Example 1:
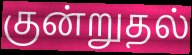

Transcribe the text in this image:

குன்றுதல்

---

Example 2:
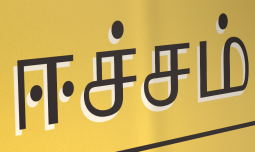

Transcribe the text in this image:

ஈச்சம்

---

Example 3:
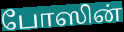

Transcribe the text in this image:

போஸின்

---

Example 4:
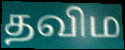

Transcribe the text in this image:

தவிம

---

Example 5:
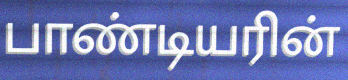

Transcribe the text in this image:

பாண்டியரின்